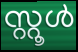
സ്റ്റൂൾ